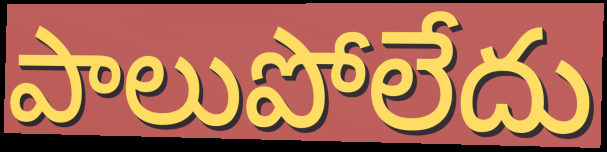
పాలుపోలేదు